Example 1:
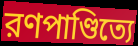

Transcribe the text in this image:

রণপাণ্ডিত্যে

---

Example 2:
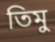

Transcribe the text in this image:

তিমু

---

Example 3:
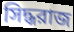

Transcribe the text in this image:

সিদ্ধরাজ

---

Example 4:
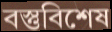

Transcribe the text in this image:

বস্তুবিশেষ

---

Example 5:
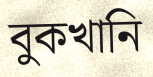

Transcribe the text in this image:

বুকখানি